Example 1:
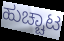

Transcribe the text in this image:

ಹುಚ್ಚಾಟ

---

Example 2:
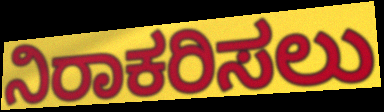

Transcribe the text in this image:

ನಿರಾಕರಿಸಲು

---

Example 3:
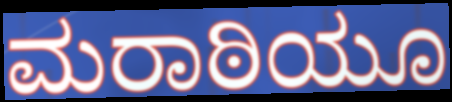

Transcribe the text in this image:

ಮರಾಠಿಯೂ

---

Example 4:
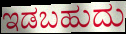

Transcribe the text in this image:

ಇಡಬಹುದು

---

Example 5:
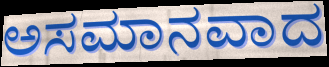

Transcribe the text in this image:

ಅಸಮಾನವಾದ